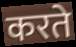
करते